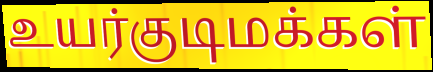
உயர்குடிமக்கள்